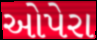
ઓપેરા